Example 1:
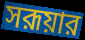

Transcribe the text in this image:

সরূয়ার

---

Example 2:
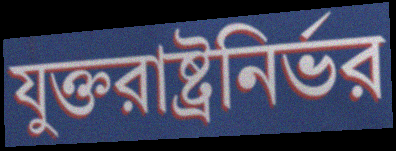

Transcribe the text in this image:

যুক্তরাষ্ট্রনির্ভর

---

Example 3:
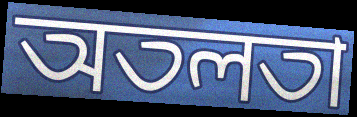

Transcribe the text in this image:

অতলতা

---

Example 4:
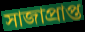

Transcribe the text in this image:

সাজাপ্রাপ্ত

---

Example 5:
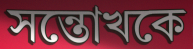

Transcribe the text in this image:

সন্তোখকে